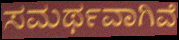
ಸಮರ್ಥವಾಗಿವೆ